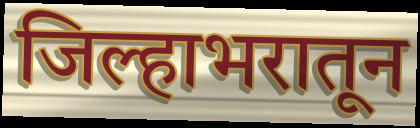
जिल्हाभरातून